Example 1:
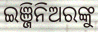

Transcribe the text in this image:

ଇଞ୍ଜିନିଅରଙ୍କୁ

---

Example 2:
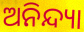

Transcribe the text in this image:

ଅନିନ୍ଦ୍ୟା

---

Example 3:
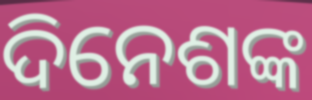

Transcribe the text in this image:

ଦିନେଶଙ୍କ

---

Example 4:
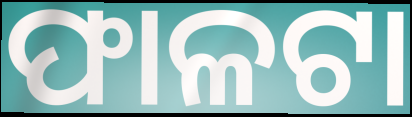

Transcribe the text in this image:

ଫାଳଟା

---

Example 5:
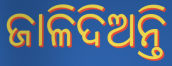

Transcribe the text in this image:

ଜାଳିଦିଅନ୍ତି